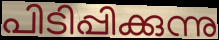
പിടിപ്പിക്കുന്നു